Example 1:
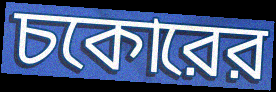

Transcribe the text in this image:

চকোরের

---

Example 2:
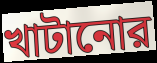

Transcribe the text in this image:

খাটানোর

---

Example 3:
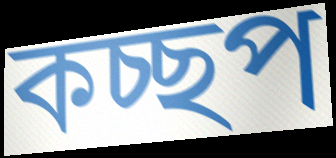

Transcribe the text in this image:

কচ্ছপ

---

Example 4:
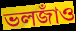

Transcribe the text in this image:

ভলজাঁও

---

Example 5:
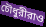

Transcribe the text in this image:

চৌধুরীরাও